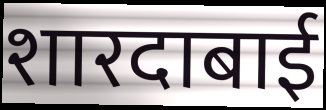
शारदाबाई